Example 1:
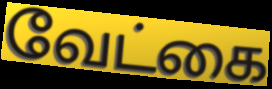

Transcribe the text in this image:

வேட்கை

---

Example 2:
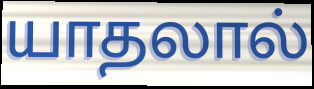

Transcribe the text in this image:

யாதலால்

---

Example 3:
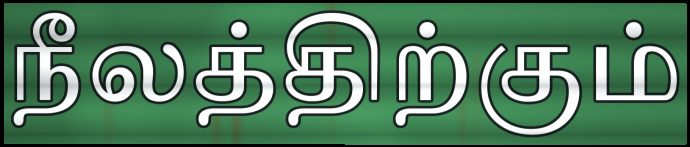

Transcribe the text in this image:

நீலத்திற்கும்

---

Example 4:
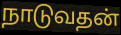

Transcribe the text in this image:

நாடுவதன்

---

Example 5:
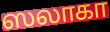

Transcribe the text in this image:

ஸலாகா